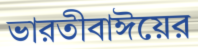
ভারতীবাঈয়ের